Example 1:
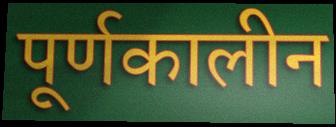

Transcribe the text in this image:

पूर्णकालीन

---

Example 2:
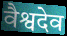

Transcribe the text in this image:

वैश्वदेव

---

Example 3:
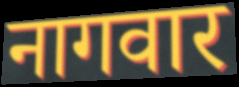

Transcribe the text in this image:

नागवार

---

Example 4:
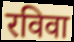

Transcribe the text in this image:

रविवा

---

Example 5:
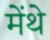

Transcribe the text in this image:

मेंथे